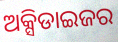
ଅକ୍ସିଡାଇଜର